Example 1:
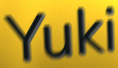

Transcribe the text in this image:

Yuki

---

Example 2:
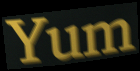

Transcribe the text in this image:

Yum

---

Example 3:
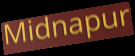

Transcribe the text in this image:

Midnapur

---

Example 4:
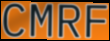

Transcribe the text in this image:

CMRF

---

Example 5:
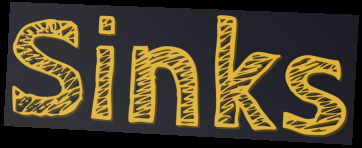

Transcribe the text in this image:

Sinks